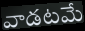
వాడటమే